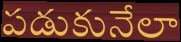
పడుకునేలా